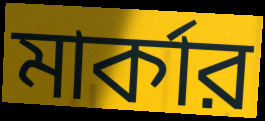
মার্কার